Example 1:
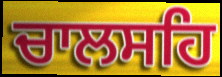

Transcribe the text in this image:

ਚਾਲਸਹਿ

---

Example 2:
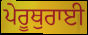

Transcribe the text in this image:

ਪੇਰੂਥੁਰਾਈ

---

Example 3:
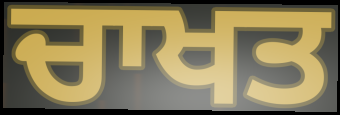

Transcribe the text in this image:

ਚਾਖਤ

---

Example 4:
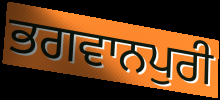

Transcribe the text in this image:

ਭਗਵਾਨਪੁਰੀ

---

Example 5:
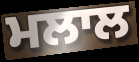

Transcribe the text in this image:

ਮਲਾਲ